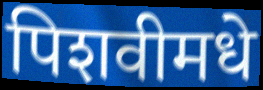
पिशवीमधे